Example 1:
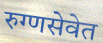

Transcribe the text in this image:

रुग्णसेवेत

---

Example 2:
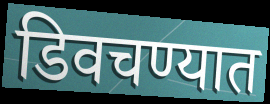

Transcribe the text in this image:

डिवचण्यात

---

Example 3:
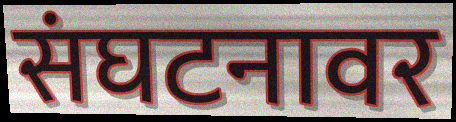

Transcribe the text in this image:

संघटनावर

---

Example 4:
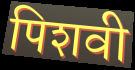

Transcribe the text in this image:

पिशवी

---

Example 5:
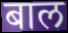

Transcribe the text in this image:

बाल